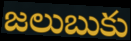
జలుబుకు